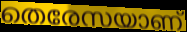
തെരേസയാണ്